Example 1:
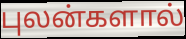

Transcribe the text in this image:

புலன்களால்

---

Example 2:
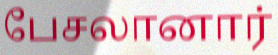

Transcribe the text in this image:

பேசலானார்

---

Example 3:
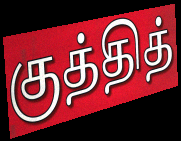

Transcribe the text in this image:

குத்தித்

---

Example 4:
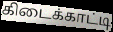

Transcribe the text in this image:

கிடைக்காட்டி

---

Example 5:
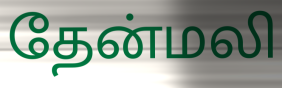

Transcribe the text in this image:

தேன்மலி